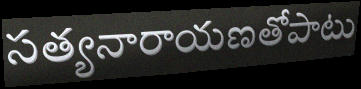
సత్యనారాయణతోపాటు